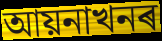
আয়নাখনৰ